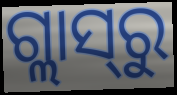
ଗ୍ଲାସ୍‍ରୁ